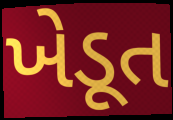
ખેડૂત